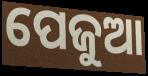
ପେଜୁଆ